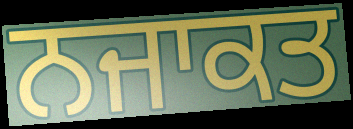
ਨਜਾਕਤ